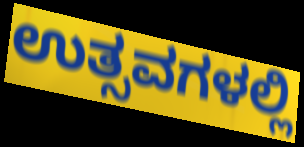
ಉತ್ಸವಗಳಲ್ಲಿ